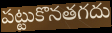
పట్టుకొనతగదు